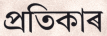
প্ৰতিকাৰ